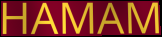
HAMAM